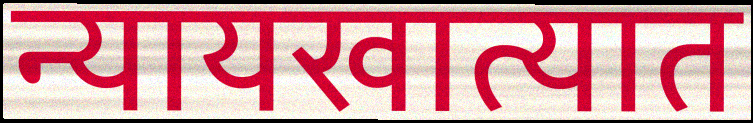
न्यायखात्यात